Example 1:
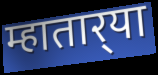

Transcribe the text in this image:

म्हातार्‍या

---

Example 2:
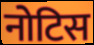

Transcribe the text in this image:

नोटिस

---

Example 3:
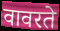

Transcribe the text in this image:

वावरते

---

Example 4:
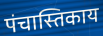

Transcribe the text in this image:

पंचास्तिकाय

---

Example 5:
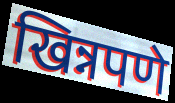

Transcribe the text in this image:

खिन्नपणे